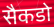
सैकडो